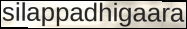
silappadhigaara